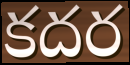
కదర